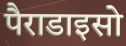
पैराडाइसो